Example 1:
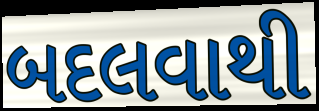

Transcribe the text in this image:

બદલવાથી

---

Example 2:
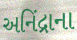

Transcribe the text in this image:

અનિંદ્રાના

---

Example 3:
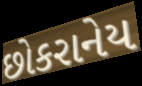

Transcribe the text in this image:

છોકરાનેય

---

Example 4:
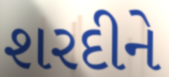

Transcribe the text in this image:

શરદીને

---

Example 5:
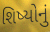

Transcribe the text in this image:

શિષ્યોનું